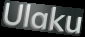
Ulaku